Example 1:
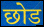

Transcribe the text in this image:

छोड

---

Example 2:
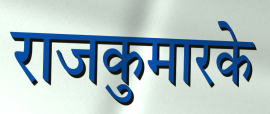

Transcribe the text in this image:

राजकुमारके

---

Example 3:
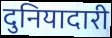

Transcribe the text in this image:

दुनियादारी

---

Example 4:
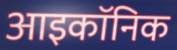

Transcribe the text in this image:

आइकॉनिक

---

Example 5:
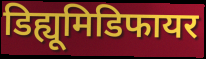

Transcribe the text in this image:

डिह्यूमिडिफायर